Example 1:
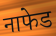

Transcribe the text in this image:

नाफेड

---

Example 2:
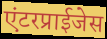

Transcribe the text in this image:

एंटरप्राईजेस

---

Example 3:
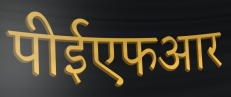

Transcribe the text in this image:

पीईएफआर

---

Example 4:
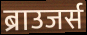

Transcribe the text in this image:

ब्राउजर्स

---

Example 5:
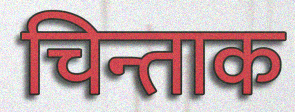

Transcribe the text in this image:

चिन्ताक